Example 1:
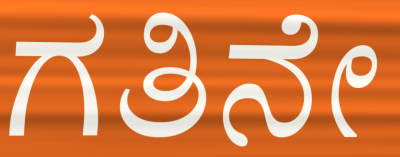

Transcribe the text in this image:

ಗತಿನೇ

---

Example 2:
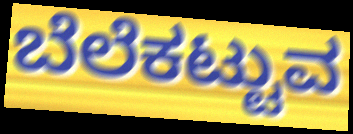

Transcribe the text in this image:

ಬೆಲೆಕಟ್ಟುವ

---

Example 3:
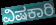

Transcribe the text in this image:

ವಿಷಕಾರಿ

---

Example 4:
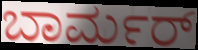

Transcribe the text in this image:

ಬಾರ್ಮರ್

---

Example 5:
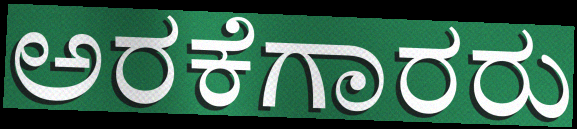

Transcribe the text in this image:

ಅರಕೆಗಾರರು